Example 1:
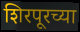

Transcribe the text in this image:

शिरपूरच्या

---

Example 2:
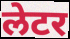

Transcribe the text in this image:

लेटर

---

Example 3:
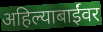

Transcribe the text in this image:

अहिल्याबाईंवर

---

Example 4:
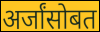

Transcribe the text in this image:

अर्जांसोबत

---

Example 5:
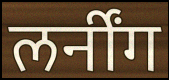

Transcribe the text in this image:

लर्नींग